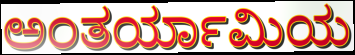
ಅಂತರ್ಯಾಮಿಯ